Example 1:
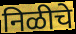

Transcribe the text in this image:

निळीचे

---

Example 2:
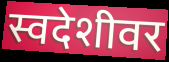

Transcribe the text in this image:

स्वदेशीवर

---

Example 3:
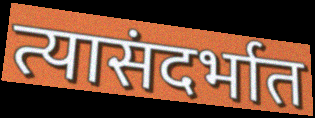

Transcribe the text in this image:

त्यासंदर्भात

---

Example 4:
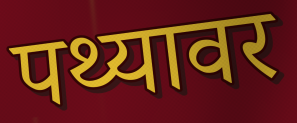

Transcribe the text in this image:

पथ्यावर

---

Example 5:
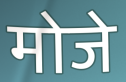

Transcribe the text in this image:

मोजे